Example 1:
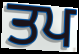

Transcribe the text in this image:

ਤਪ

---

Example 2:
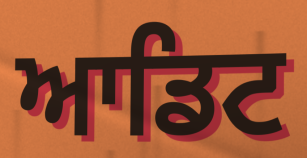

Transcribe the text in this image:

ਆਡਿਟ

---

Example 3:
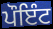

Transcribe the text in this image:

ਪੌਇੰਟ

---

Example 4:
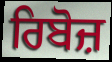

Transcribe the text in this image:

ਰਿਬੋਜ਼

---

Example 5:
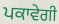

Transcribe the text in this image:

ਪਕਾਵੇਗੀ